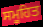
ਸਮੂਹਿਤ